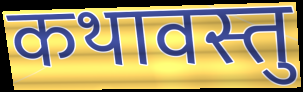
कथावस्‍तु